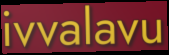
ivvalavu